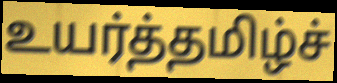
உயர்த்தமிழ்ச்